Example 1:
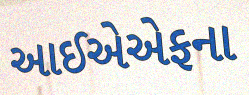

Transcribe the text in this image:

આઈએએફના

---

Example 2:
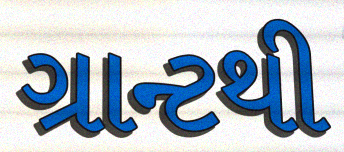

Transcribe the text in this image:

ગ્રાન્ટથી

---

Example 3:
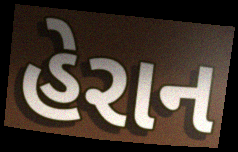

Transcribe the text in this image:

હેરાન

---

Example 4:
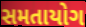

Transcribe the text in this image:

સમતાયોગ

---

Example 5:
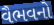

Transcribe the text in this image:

વૈભવનો